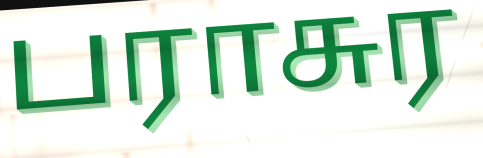
பராசுர